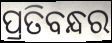
ପ୍ରତିବନ୍ଧର